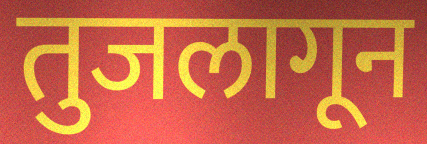
तुजलागून